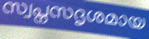
സ്വപ്നസദൃശമായ